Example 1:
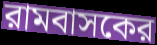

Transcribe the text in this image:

রামবাসকের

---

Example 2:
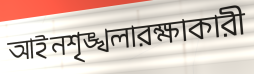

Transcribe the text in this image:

আইনশৃঙ্খলারক্ষাকারী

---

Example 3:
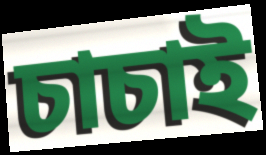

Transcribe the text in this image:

চাচাই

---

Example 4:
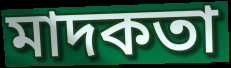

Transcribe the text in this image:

মাদকতা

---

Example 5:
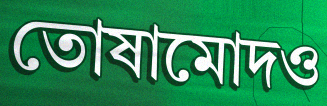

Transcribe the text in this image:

তোষামোদও